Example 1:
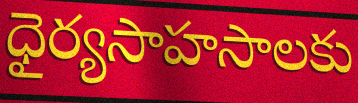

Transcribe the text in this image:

ధైర్యసాహసాలకు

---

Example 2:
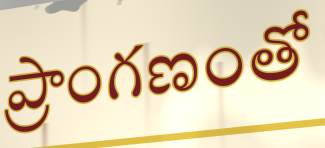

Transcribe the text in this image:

ప్రాంగణంతో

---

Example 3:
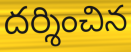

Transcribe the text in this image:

దర్శించిన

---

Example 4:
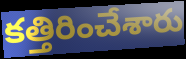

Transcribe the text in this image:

కత్తిరించేశారు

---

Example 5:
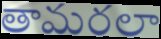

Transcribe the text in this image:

తామరలా